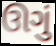
ઊગું